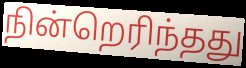
நின்றெரிந்தது